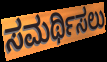
ಸಮರ್ಥಿಸಲು